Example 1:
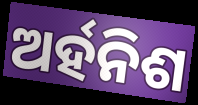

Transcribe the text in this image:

ଅର୍ହନିଶ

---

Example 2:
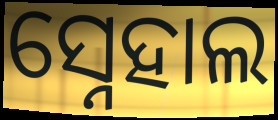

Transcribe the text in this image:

ସ୍ନେହାଲ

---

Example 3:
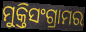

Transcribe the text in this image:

ମୁକ୍ତିସଂଗ୍ରାମର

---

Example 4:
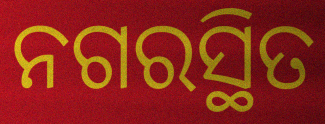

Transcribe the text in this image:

ନଗରସ୍ଥିତ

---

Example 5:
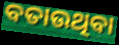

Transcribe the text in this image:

ବତାଉଥିବା